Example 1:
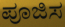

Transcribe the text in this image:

ಪೂಜಿಸ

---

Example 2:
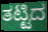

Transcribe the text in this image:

ತಟ್ಟಿದ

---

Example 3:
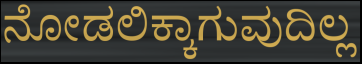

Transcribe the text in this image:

ನೋಡಲಿಕ್ಕಾಗುವುದಿಲ್ಲ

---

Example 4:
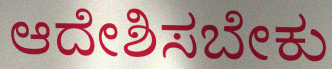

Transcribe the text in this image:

ಆದೇಶಿಸಬೇಕು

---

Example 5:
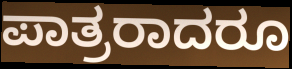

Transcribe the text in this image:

ಪಾತ್ರರಾದರೂ